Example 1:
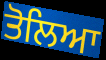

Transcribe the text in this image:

ਤੋਲਿਆ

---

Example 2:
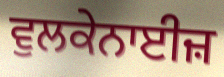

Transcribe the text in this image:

ਵੁਲਕੇਨਾਈਜ਼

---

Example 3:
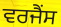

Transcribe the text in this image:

ਵਰਜੈਂਸ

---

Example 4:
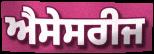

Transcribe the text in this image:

ਐਸੇਸਰੀਜ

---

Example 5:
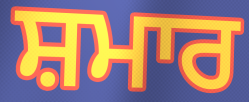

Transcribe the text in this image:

ਸ਼ਮਾਰ